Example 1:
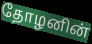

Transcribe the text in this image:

தோழனின்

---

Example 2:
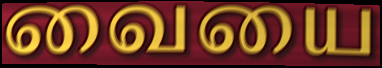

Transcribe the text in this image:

வையை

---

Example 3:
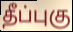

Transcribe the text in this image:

தீப்புகு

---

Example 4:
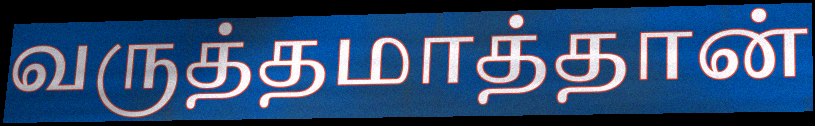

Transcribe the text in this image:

வருத்தமாத்தான்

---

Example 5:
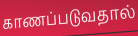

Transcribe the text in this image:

காணப்படுவதால்